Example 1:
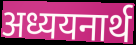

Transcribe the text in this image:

अध्ययनार्थ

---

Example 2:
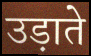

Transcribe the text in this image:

उड़ाते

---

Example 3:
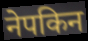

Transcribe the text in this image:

नेपकिन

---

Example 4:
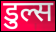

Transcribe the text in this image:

डुल्स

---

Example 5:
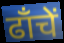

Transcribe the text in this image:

ढाँचें